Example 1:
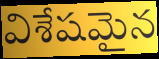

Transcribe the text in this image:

విశేషమైన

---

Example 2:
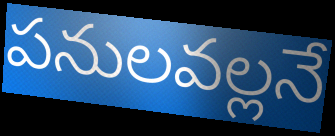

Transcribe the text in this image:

పనులవల్లనే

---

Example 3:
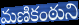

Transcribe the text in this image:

మణికంఠుని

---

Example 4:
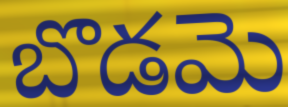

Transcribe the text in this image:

బొడమె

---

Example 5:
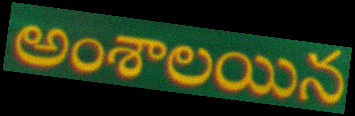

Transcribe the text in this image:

అంశాలయిన